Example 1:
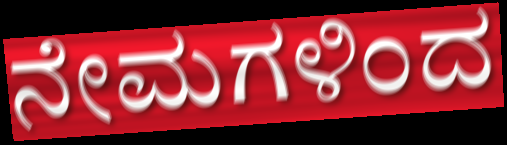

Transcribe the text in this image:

ನೇಮಗಳಿಂದ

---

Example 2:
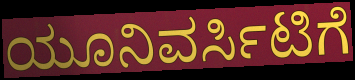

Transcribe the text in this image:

ಯೂನಿವರ್ಸಿಟಿಗೆ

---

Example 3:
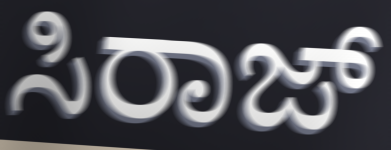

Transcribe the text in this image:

ಸಿರಾಜ್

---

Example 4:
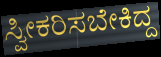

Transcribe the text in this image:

ಸ್ವೀಕರಿಸಬೇಕಿದ್ದ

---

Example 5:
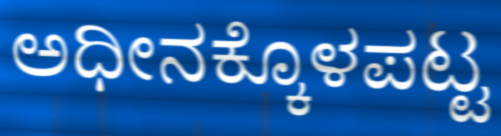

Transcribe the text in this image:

ಅಧೀನಕ್ಕೊಳಪಟ್ಟ